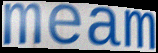
meam